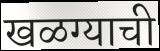
खळग्याची